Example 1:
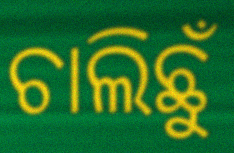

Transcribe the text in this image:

ଚାଲିଛୁଁ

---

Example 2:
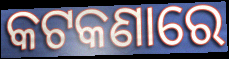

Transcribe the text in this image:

କଟକଣାରେ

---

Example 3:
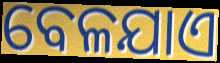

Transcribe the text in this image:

ବେଳଯାଏ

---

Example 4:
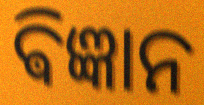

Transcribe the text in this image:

ଵିଜ୍ଞାନ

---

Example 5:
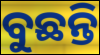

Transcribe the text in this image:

ବୁଛନ୍ତି